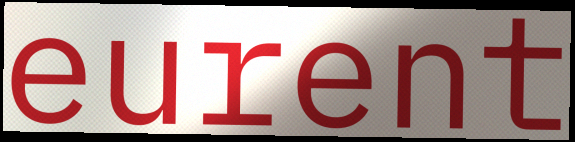
eurent